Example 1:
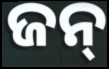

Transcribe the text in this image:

ଜନ୍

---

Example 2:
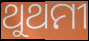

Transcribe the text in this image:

ଥୁଥମୀ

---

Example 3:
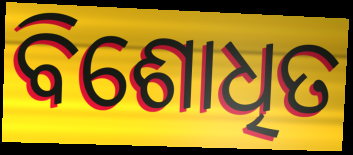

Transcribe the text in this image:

ବିଶୋଧିତ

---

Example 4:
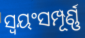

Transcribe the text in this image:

ସ୍ୱୟଂସମ୍ପୂର୍ଣ୍ଣ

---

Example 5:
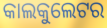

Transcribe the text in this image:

କାଲକୁଲେଟର